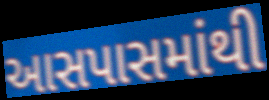
આસપાસમાંથી